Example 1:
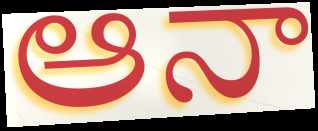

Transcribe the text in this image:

ఆనా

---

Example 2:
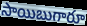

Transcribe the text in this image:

సాయిబుగారూ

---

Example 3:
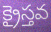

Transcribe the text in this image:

క్రైస్తవ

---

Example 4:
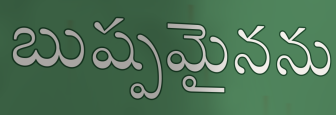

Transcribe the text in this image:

బుష్పమైనను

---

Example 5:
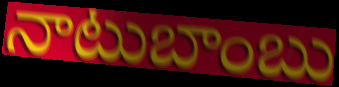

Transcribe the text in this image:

నాటుబాంబు